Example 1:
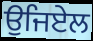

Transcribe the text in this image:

ਉਜਿਏਲ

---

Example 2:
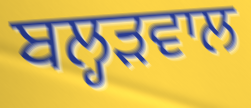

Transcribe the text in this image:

ਬਲ੍ਹੜਵਾਲ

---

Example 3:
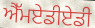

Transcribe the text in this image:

ਐੱਮਏਡੀਏਡੀ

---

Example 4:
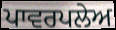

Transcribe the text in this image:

ਪਾਵਰਪਲੇਅ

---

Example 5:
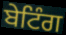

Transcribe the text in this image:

ਬੇਟਿੰਗ